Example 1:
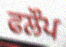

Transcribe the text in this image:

ਫਲੌਪ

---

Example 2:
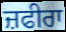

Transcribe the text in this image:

ਜ਼ਫੀਰਾ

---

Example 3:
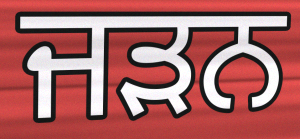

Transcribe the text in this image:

ਜੜਨ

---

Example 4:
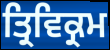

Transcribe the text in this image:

ਤ੍ਰਿਵਿਕ੍ਰਮ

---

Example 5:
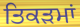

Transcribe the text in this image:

ਤਿਕੜਮਾਂ